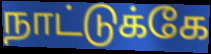
நாட்டுக்கே